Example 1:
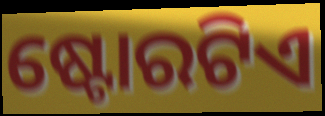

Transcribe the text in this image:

ଷ୍ଟୋରଟିଏ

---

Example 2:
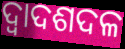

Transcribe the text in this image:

ଦ୍ୱାଦଶଦଳ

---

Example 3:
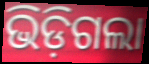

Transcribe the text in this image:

ଭିଡ଼ିଗଲା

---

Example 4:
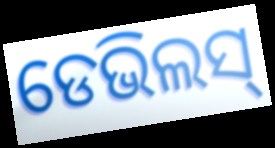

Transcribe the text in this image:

ଡେଭିଲସ୍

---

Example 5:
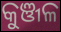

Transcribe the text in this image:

କୁଞ୍ଜଳ